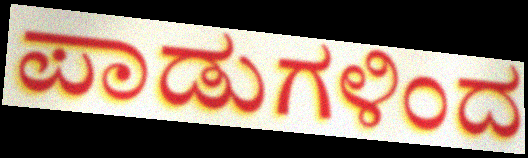
ಪಾಡುಗಳಿಂದ